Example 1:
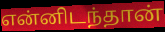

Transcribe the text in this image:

என்னிடந்தான்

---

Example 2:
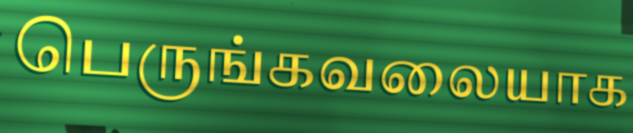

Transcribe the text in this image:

பெருங்கவலையாக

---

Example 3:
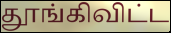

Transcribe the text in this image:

தூங்கிவிட்ட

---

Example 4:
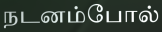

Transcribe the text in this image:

நடனம்போல்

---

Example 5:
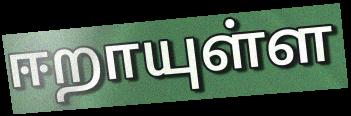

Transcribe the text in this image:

ஈறாயுள்ள